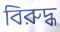
বিৰুদ্ধ